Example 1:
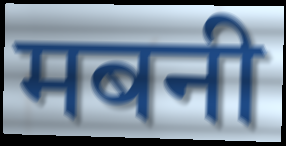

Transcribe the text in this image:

मबनी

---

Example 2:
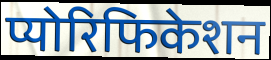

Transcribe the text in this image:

प्योरिफिकेशन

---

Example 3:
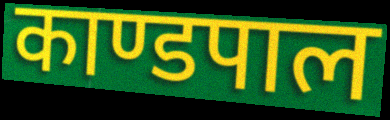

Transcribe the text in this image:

काण्डपाल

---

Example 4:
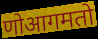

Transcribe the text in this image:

णोआगमतो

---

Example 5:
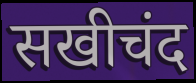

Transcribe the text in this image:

सखीचंद